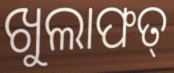
ଖୁଲାଫତ୍